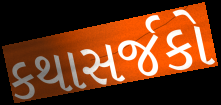
કથાસર્જકો